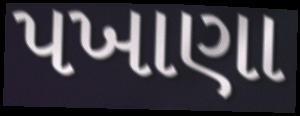
પખાણા